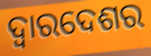
ଦ୍ୱାରଦେଶର